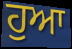
ਹੁਆ